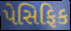
પેસિફિક